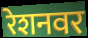
रेशनवर